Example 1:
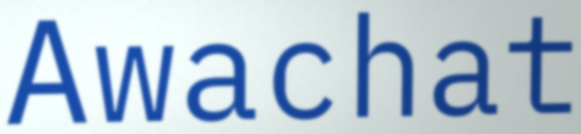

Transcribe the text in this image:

Awachat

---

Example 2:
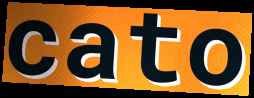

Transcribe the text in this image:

cato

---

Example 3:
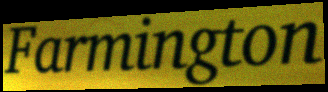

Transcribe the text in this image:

Farmington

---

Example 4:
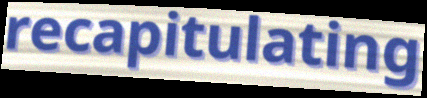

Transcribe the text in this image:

recapitulating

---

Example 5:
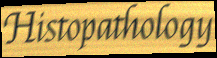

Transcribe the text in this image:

Histopathology